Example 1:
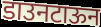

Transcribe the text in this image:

डाउनटाऊन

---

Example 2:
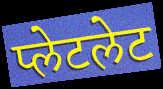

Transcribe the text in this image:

प्लेटलेट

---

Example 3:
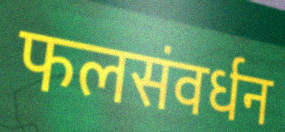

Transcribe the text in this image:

फलसंवर्धन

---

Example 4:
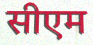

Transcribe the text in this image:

सीएम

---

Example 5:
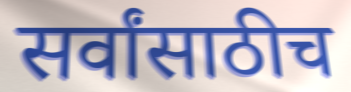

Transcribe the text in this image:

सर्वांसाठीच